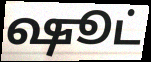
ஷூட்